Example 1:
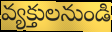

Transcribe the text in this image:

వ్యక్తులనుండి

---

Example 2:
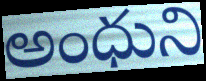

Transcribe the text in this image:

అంధుని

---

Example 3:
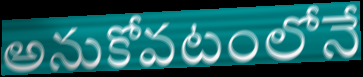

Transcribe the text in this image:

అనుకోవటంలోనే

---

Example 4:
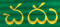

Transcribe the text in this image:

చదు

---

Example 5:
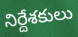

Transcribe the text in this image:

నిర్దేశకులు